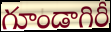
గూండాగిరీ